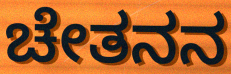
ಚೇತನನ